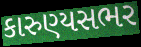
કારુણ્યસભર